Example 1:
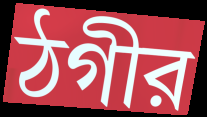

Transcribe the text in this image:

ঠগীর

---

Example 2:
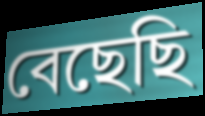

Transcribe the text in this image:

বেছেছি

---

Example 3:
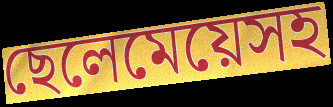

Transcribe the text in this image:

ছেলেমেয়েসহ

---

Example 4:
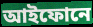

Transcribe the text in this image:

আইফোনে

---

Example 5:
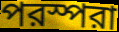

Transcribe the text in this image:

পরস্পরা